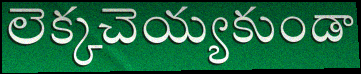
లెక్కచెయ్యకుండా